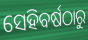
ସେହିବର୍ଷଠାରୁ